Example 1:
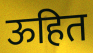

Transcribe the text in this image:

ऊहित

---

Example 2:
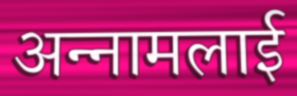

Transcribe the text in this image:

अन्‍नामलाई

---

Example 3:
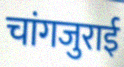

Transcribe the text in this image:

चांगजुराई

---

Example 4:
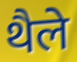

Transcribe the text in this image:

थैले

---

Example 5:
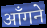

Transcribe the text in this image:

आँगने